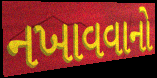
નખાવવાનો